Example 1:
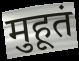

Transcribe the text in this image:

मुहूतं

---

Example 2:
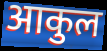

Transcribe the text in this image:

आकुल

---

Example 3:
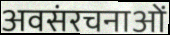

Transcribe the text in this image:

अवसंरचनाओं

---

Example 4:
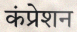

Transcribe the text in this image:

कंप्रेशन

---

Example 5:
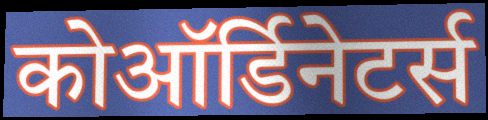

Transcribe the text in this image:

कोऑर्डिनेटर्स